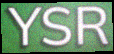
YSR